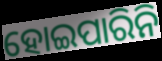
ହୋଇପାରିନି